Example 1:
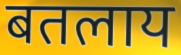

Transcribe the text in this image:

बतलाय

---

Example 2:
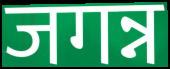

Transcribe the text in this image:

जगन्न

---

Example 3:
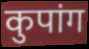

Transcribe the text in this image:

कुपांग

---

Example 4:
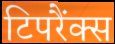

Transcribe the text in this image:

टिपरैंक्स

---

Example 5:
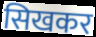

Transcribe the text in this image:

सिखकर